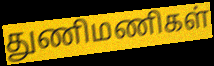
துணிமணிகள்